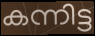
കന്നിട്ട